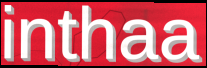
inthaa